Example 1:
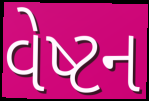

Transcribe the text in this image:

વેષ્ટન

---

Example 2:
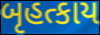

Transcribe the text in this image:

બૃહત્કાય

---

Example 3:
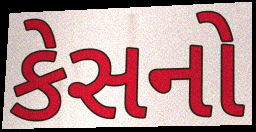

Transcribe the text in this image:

કેસનો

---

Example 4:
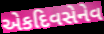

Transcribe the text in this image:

એકદિવસેનેવ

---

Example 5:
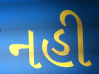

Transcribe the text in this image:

નહી